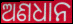
ଅଣଧାନ